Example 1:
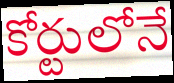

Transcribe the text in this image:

కోర్టులోనే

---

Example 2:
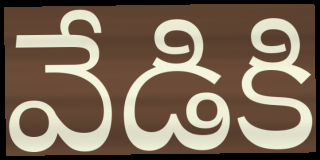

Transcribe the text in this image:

వేడికి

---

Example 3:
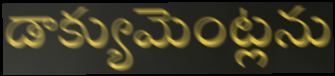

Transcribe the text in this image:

డాక్యుమెంట్లను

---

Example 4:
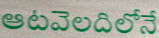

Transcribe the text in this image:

ఆటవెలదిలోనే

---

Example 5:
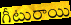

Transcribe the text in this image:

గీటురాయి